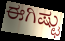
ಈಗಿಷ್ಟು